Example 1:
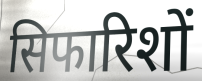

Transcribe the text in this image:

सिफारिशों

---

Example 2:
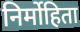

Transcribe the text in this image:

निर्मोहिता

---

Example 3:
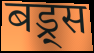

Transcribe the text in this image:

बड्र्स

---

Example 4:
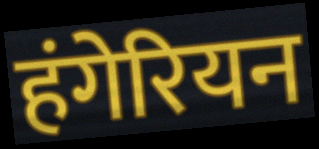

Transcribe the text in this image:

हंगेरियन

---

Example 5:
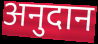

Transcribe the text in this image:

अनुदान